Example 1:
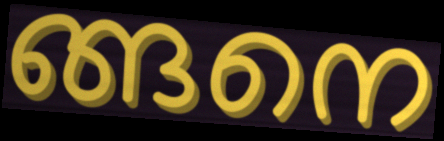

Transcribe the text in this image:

ങ്ങനെ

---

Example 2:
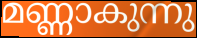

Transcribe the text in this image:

മണ്ണാകുന്നു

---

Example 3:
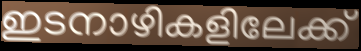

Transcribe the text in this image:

ഇടനാഴികളിലേക്ക്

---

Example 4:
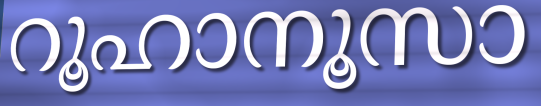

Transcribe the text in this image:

റൂഹാനൂസാ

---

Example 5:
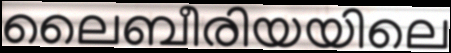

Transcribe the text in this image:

ലൈബീരിയയിലെ